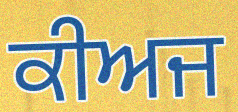
ਕੀਅਜ